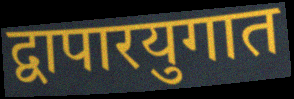
द्वापारयुगात